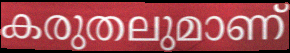
കരുതലുമാണ്